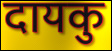
दायकु